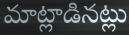
మాట్లాడినట్లు